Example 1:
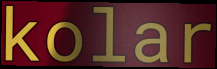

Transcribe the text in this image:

kolar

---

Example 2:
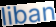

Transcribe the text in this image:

liban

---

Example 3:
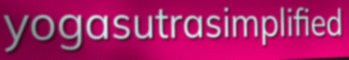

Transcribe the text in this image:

yogasutrasimplified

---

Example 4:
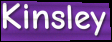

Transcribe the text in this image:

Kinsley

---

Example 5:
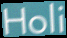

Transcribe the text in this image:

Holi